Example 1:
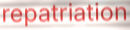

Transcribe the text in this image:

repatriation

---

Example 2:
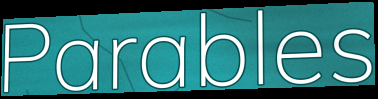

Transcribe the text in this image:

Parables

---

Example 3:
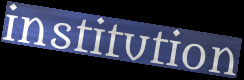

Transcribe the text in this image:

institution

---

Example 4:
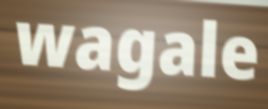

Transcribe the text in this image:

wagale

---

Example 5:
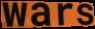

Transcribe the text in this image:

wars